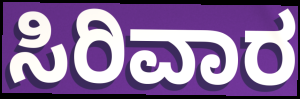
ಸಿರಿವಾರ